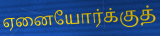
ஏனையோர்க்குத்